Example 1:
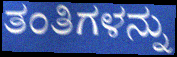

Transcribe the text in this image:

ತಂತಿಗಳನ್ನು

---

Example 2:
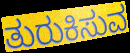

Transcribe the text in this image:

ತುರುಕಿಸುವ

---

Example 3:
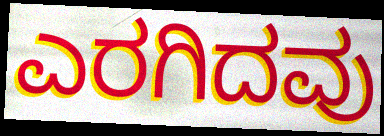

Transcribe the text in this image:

ಎರಗಿದವು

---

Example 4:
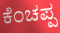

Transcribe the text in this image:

ಕೆಂಚಪ್ಪ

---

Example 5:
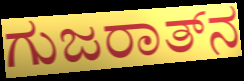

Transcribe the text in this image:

ಗುಜರಾತ್‍ನ